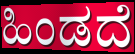
ಹಿಂಡದೆ